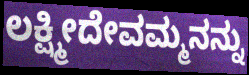
ಲಕ್ಷ್ಮೀದೇವಮ್ಮನನ್ನು